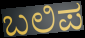
ಬಲಿಪ